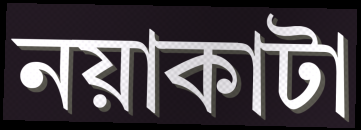
নয়াকাটা